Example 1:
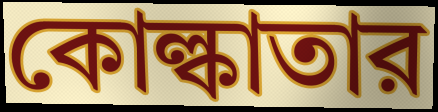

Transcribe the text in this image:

কোল্কাতার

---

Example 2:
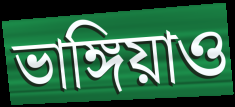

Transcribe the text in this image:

ভাঙ্গিয়াও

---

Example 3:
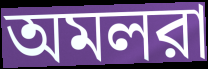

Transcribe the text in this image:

অমলরা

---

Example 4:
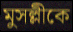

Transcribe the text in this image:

মুসল্লীকে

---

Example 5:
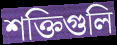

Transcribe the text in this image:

শক্তিগুলি